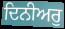
ਦਿਨੀਅਰੁ